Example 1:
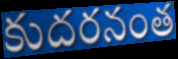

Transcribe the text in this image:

కుదరనంత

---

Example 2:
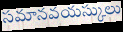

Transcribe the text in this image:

సమానవయస్కులు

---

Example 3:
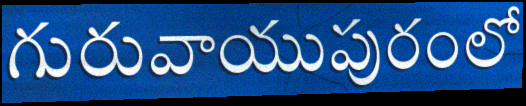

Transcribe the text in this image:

గురువాయుపురంలో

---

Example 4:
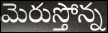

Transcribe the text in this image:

మెరుస్తోన్న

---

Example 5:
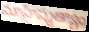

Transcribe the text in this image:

మాహిష్మత్యాం